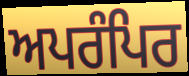
ਅਪਰੰਪਿਰ